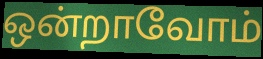
ஒன்றாவோம்